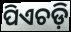
ପିଏଚଡ଼ି